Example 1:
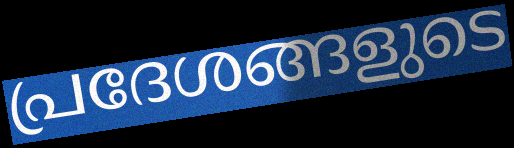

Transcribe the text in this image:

പ്രദേശങ്ങളുടെ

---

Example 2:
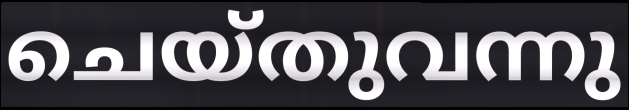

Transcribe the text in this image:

ചെയ്തുവന്നു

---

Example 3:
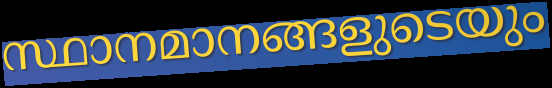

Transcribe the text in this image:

സ്ഥാനമാനങ്ങളുടെയും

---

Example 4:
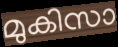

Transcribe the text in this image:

മുകിസാ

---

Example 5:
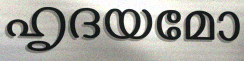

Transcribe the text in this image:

ഹൃദയമോ